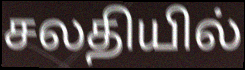
சலதியில்